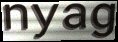
nyag